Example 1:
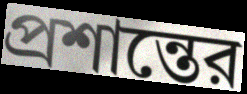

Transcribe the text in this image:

প্রশান্তের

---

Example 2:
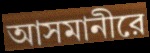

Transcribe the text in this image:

আসমানীরে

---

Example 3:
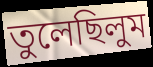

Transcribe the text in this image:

তুলেছিলুম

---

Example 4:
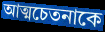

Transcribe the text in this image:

আত্মচেতনাকে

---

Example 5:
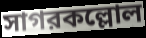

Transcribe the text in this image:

সাগরকল্লোল